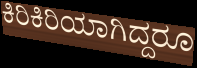
ಕಿರಿಕಿರಿಯಾಗಿದ್ದರೂ